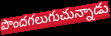
పొందగలుగుచున్నాడు